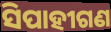
ସିପାହୀଗଣ